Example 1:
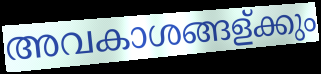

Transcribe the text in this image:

അവകാശങ്ങള്ക്കും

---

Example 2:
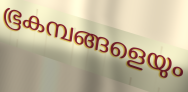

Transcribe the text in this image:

ഭൂകമ്പങ്ങളെയും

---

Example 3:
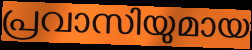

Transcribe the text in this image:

പ്രവാസിയുമായ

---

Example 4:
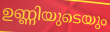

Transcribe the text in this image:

ഉണ്ണിയുടെയും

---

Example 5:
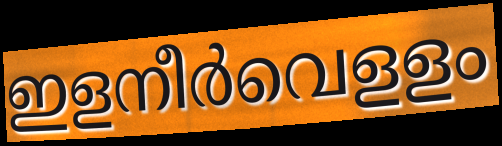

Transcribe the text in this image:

ഇളനീർവെളളം